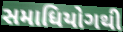
સમાધિયોગથી